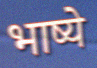
भाष्ये